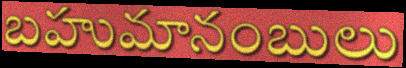
బహుమానంబులు